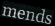
mends